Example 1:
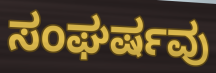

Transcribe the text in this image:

ಸಂಘರ್ಷವು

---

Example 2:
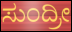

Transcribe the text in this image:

ಸುಂದ್ರೀ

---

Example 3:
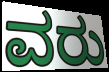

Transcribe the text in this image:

ವರು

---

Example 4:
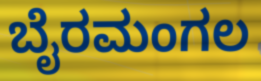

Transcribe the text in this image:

ಬೈರಮಂಗಲ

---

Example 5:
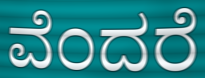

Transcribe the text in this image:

ವೆಂದರೆ